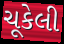
ચૂકેલી